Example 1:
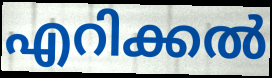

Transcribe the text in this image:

എറിക്കൽ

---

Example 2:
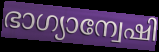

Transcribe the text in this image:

ഭാഗ്യാന്വേഷി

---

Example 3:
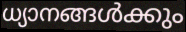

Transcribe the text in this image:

ധ്യാനങ്ങൾക്കും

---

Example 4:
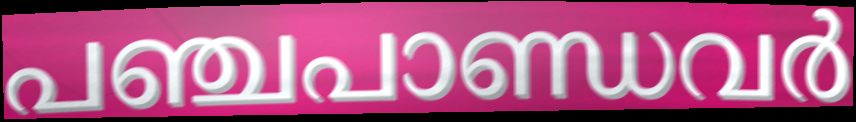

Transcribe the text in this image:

പഞ്ചപാണ്ഡവർ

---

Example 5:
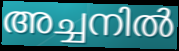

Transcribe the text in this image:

അച്ചനിൽ